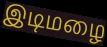
இடிமழை